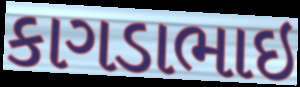
કાગડાભાઇ